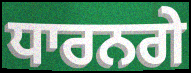
ਧਾਰਨਗੇ